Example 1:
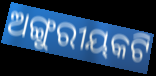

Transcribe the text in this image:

ଅଙ୍ଗୁରୀୟକଟି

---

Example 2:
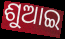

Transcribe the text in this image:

ଶୁଆଇ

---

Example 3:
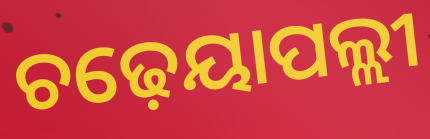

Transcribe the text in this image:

ଚଢ଼େୟାପଲ୍ଲୀ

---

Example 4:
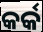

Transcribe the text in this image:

କର୍କ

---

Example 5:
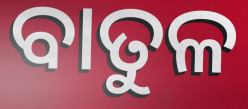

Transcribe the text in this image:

ବାତୁଳ